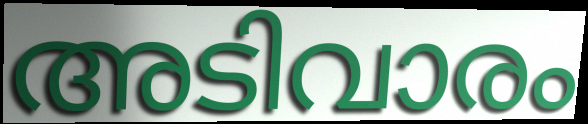
അടിവാരം